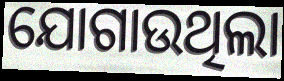
ଯୋଗାଉଥିଲା